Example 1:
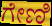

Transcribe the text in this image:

ಗೇಣಿ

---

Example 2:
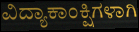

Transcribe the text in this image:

ವಿದ್ಯಾಕಾಂಕ್ಷಿಗಳಾಗಿ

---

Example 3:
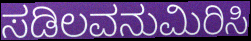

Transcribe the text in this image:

ಸಡಿಲವನುಮಿರಿಸಿ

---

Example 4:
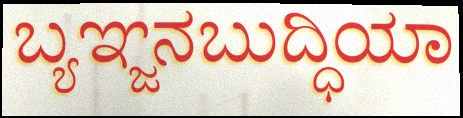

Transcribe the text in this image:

ಬ್ಯಞ್ಜನಬುದ್ಧಿಯಾ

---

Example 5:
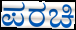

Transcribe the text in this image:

ಪರಚಿ